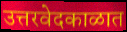
उत्तरवेदकाळात